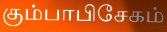
கும்பாபிசேகம்